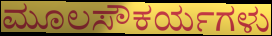
ಮೂಲಸೌಕರ್ಯಗಳು